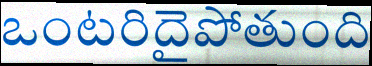
ఒంటరిదైపోతుంది